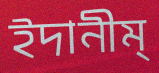
ইদানীম্